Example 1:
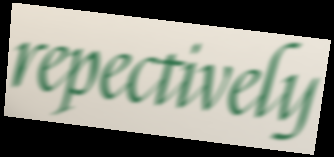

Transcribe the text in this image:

repectively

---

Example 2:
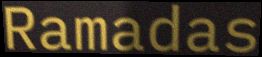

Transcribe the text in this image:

Ramadas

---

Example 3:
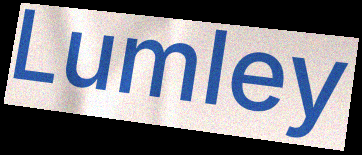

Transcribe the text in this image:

Lumley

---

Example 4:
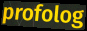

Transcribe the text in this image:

profolog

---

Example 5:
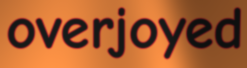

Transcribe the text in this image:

overjoyed